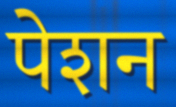
पेशन